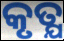
କୃତ୍ଯ